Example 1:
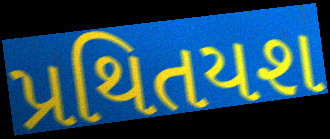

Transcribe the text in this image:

પ્રથિતયશ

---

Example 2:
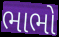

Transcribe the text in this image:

ભાભો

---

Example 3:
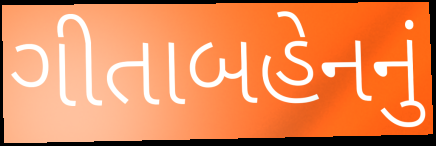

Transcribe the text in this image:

ગીતાબહેનનું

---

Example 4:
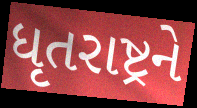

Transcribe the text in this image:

ધૃતરાષ્ટ્રને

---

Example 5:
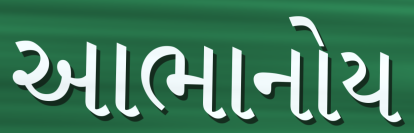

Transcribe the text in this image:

આભાનોય